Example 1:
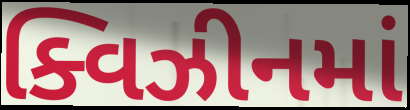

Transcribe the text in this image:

ક્વિઝીનમાં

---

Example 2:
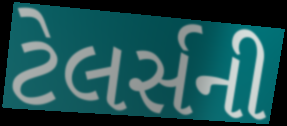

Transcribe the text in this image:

ટેલર્સની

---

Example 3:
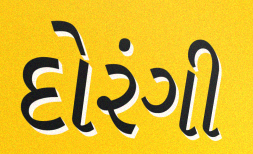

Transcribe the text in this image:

દોરંગી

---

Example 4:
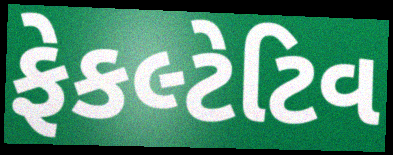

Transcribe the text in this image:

ફેકલ્ટેટિવ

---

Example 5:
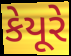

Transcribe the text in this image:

કેયૂરે